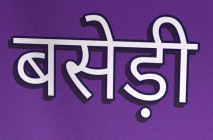
बसेड़ी